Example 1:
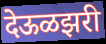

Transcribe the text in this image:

देऊळझरी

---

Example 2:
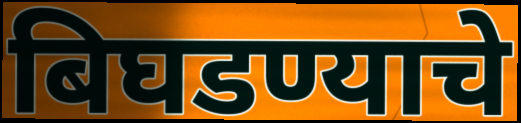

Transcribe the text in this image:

बिघडण्याचे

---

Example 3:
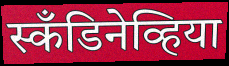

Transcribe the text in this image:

स्कँडिनेव्हिया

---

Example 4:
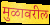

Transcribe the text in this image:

मुळावरील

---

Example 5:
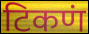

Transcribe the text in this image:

टिकणं